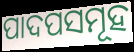
ପାଦପସମୂହ